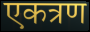
एकत्रण